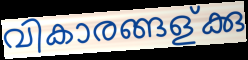
വികാരങ്ങള്ക്കു